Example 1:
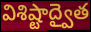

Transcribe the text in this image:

విశిష్టాద్వైత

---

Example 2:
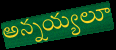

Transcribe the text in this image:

అన్నయ్యలూ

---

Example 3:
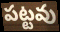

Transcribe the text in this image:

పట్టవు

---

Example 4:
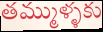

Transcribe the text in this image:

తమ్ముళ్ళకు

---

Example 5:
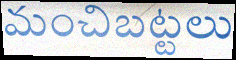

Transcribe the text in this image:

మంచిబట్టలు